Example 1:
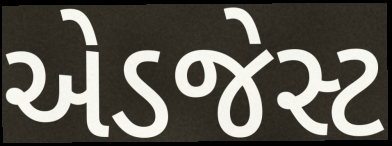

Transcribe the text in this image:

એડજેસ્ટ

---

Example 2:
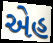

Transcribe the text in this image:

એહ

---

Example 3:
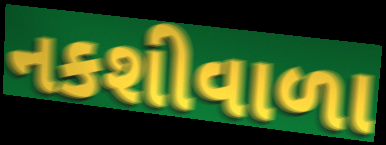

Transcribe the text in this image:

નકશીવાળા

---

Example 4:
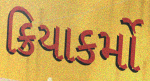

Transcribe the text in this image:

ક્રિયાકર્મો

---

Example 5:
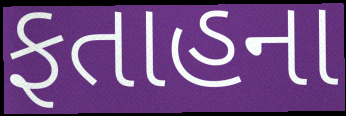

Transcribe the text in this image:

ફતાહના